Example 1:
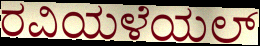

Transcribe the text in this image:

ರವಿಯಳೆಯಲ್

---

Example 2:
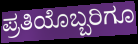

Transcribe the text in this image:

ಪ್ರತಿಯೊಬ್ಬರಿಗೂ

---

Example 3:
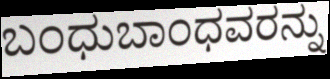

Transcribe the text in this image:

ಬಂಧುಬಾಂಧವರನ್ನು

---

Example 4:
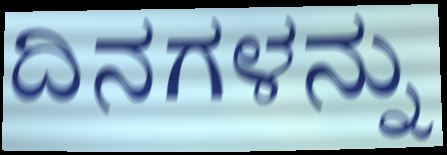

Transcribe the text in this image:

ದಿನಗಳನ್ನು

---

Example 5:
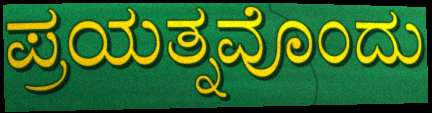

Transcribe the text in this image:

ಪ್ರಯತ್ನವೊಂದು